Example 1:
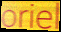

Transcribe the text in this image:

oriel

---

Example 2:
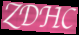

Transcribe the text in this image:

ZDHC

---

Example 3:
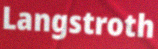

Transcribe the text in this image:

Langstroth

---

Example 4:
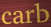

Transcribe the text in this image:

carb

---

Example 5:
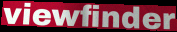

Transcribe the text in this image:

viewfinder